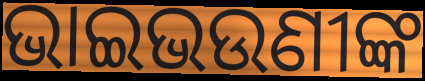
ଭାଇଭଉଣୀଙ୍କ